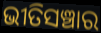
ଭୀତିସଞ୍ଚାର